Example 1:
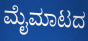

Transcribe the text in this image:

ಮೈಮಾಟದ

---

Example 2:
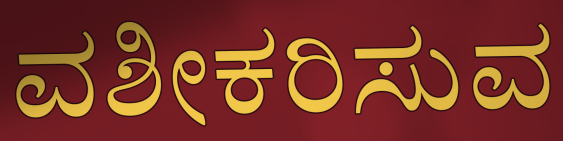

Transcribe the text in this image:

ವಶೀಕರಿಸುವ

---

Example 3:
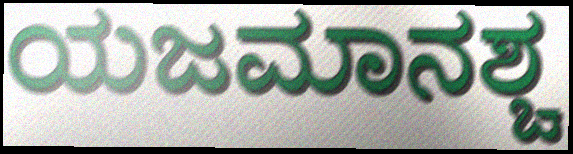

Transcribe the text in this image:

ಯಜಮಾನಶ್ಚ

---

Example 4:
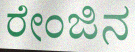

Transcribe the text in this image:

ರೇಂಜಿನ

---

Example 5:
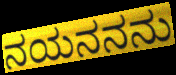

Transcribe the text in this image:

ನಯನನನು